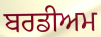
ਬਰਡੀਅਮ